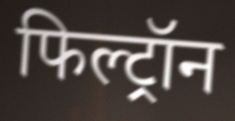
फिल्ट्रॉन